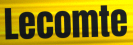
Lecomte